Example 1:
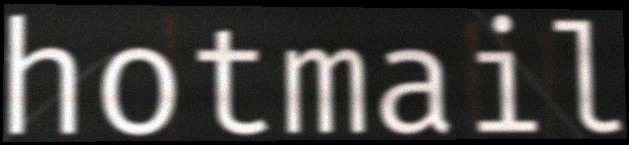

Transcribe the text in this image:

hotmail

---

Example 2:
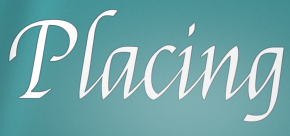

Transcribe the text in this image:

Placing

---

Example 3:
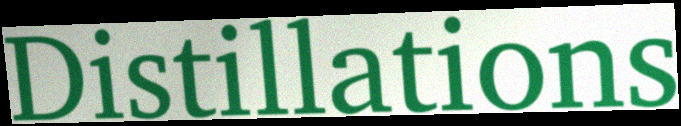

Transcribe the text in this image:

Distillations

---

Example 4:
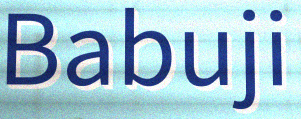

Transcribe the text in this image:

Babuji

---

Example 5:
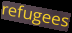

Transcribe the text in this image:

refugees